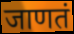
जाणतं